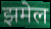
झमेल